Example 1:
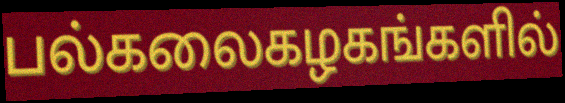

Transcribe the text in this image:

பல்கலைகழகங்களில்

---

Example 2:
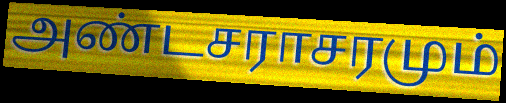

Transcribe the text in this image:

அண்டசராசரமும்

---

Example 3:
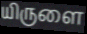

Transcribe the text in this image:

யிருளை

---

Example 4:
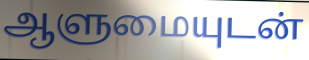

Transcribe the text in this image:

ஆளுமையுடன்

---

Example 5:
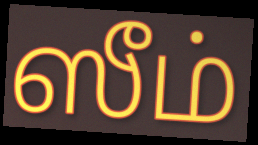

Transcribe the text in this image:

ஸீம்